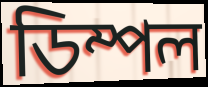
ডিম্পল